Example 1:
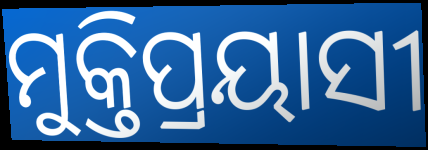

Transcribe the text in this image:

ମୁକ୍ତିପ୍ରୟାସୀ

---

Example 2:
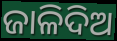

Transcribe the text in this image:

ଜାଳିଦିଅ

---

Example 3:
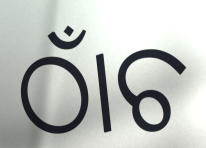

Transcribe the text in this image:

ଠାଁଚ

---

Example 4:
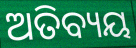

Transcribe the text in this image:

ଅତିବ୍ୟୟ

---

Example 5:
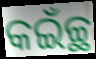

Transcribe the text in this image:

କଇଁଚ୍ଛ